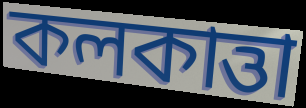
কলকাত্তা